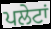
ਪਲੇਟਾਂ